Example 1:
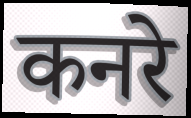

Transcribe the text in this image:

कनरे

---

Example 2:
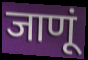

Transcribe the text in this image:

जाणूं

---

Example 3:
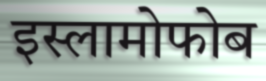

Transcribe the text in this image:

इस्लामोफोब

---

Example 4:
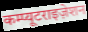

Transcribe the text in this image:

कम्प्यूटराइज़ेशन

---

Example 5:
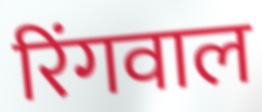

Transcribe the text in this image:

रिंगवाल